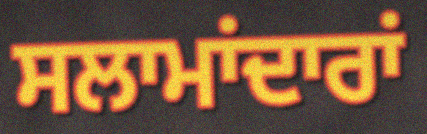
ਸਲਾਮਾਂਦਾਰਾਂ